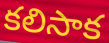
కలిసాక